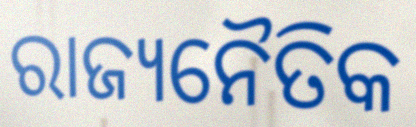
ରାଜ୍ୟନୈତିକ